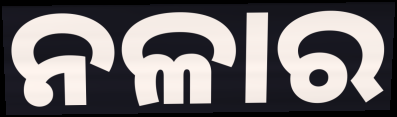
ନଳାର